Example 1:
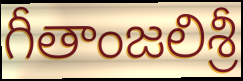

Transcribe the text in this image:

గీతాంజలిశ్రీ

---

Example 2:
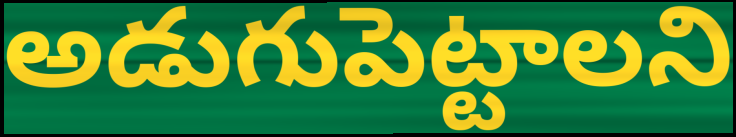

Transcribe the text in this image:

అడుగుపెట్టాలని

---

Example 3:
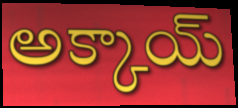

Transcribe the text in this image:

అక్కాయ్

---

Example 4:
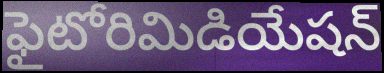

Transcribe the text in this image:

ఫైటోరిమిడియేషన్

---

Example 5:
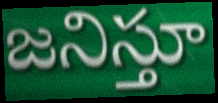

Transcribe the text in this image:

జనిస్తూ